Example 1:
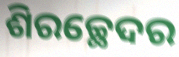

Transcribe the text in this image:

ଶିରଚ୍ଛେଦର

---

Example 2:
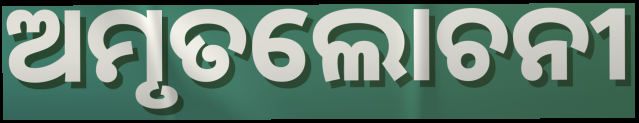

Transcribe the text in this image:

ଅମୃତଲୋଚନୀ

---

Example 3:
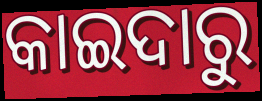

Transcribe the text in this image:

କାଇଦାରୁ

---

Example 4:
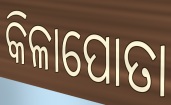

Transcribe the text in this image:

କିଳାପୋତା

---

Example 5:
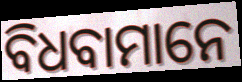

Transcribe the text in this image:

ବିଧବାମାନେ